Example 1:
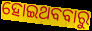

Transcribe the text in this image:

ହୋଇଥବବାରୁ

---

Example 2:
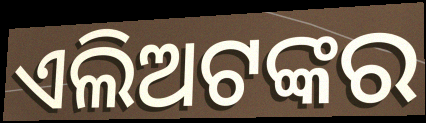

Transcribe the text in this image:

ଏଲିଅଟଙ୍କର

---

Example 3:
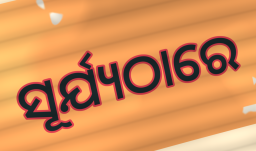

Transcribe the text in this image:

ସୂର୍ଯ୍ୟଠାରେ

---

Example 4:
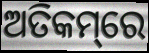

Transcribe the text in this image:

ଅତିକମ୍‌ରେ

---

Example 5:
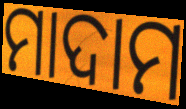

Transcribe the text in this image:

ମାଦାମ